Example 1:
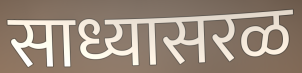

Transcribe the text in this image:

साध्यासरळ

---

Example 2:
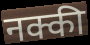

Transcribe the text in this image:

नक्की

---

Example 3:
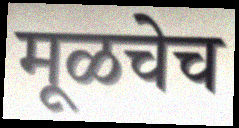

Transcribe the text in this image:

मूळचेच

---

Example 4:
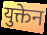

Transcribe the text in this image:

युक्तेन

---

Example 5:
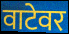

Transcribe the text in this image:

वाटेवर